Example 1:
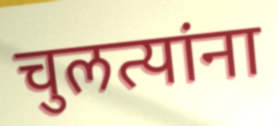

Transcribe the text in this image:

चुलत्यांना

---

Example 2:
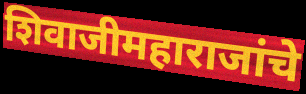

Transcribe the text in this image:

शिवाजीमहाराजांचे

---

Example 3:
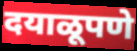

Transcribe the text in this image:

दयाळूपणे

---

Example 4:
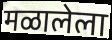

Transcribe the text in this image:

मळालेला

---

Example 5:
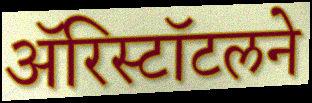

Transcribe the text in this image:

ॲरिस्टॉटलने